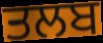
ਤਲਬ